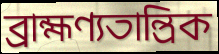
ব্রাহ্মণ্যতান্ত্রিক